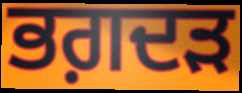
ਭਗ਼ਦੜ